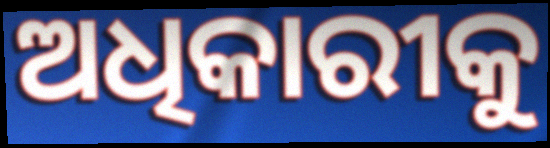
ଅଧିକାରୀକୁ